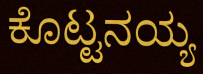
ಕೊಟ್ಟನಯ್ಯ